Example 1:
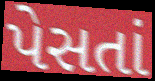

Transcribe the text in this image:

પેસતાં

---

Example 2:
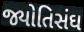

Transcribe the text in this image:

જ્યોતિસંઘ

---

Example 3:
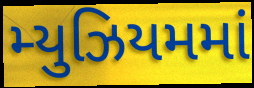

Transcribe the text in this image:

મ્યુઝિયમમાં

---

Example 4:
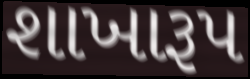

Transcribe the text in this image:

શાખારૂપ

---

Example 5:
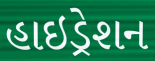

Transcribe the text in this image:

હાઇડ્રેશન